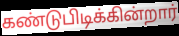
கண்டுபிடிக்கின்றார்